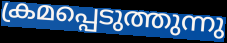
ക്രമപ്പെടുത്തുന്നു